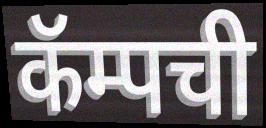
कॅम्पची